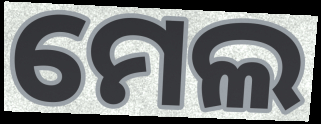
ମେଲ